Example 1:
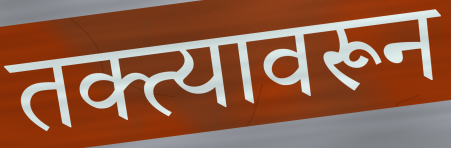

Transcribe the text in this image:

तक्त्यावरून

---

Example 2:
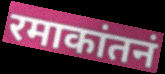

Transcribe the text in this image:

रमाकांतनं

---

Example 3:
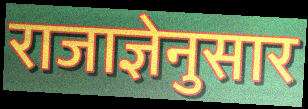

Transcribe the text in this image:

राजाज्ञेनुसार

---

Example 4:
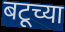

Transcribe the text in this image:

बटूच्या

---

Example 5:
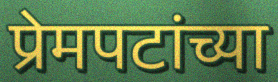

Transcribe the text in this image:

प्रेमपटांच्या